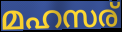
മഹസര്